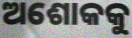
ଅଶୋକକୁ